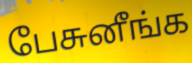
பேசுனீங்க